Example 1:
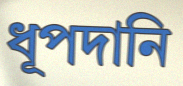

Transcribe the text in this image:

ধূপদানি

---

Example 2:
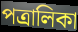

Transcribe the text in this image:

পত্রালিকা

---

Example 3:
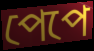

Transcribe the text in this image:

পেপে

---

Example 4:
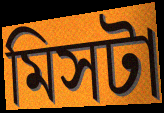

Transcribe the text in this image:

মিসটা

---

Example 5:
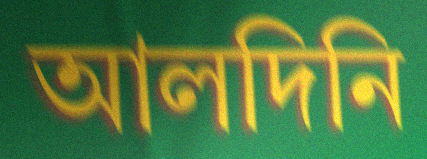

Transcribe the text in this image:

আলদিনি